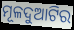
ମୂଳଦୁଆଟିର